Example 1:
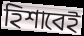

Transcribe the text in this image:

হিশাবেই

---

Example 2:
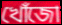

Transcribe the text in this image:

খোঁজো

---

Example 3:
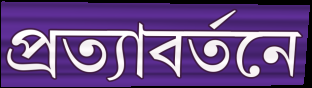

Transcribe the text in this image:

প্রত্যাবর্তনে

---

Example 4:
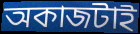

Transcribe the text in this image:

অকাজটাই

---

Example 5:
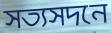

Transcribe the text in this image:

সত্যসদনে